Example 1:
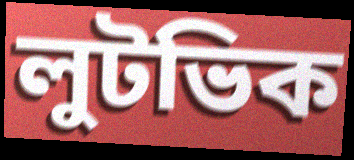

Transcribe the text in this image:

লুটভিক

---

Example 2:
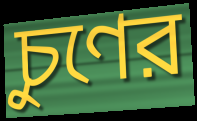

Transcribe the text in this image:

চুণের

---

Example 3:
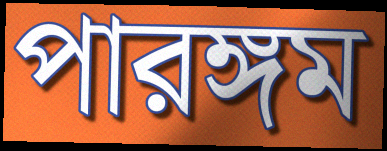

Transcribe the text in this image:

পারঙ্গম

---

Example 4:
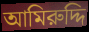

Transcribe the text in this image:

আমিরুদ্দি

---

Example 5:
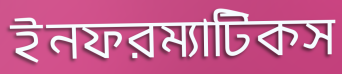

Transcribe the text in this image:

ইনফরম্যাটিকস